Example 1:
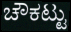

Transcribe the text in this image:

ಚೌಕಟ್ಟು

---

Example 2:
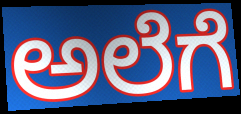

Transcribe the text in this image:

ಅಲೆಗೆ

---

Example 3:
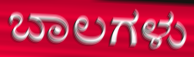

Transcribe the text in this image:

ಬಾಲಗಳು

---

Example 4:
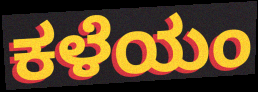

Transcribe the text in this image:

ಕಳೆಯಂ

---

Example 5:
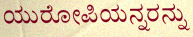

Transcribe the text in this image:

ಯುರೋಪಿಯನ್ನರನ್ನು